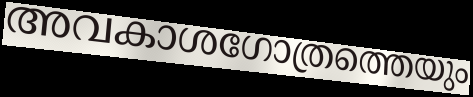
അവകാശഗോത്രത്തെയും